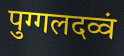
पुग्गलदव्वं